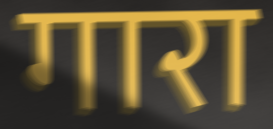
गारा